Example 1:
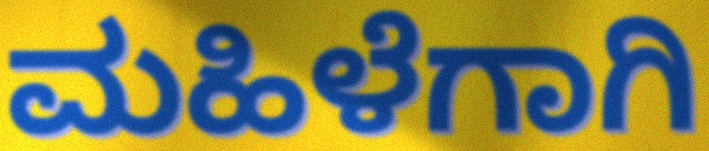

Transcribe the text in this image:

ಮಹಿಳೆಗಾಗಿ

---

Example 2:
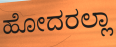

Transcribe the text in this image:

ಹೋದರಲ್ಲಾ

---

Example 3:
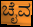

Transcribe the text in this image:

ಚೈವ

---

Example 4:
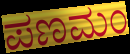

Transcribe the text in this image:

ಪಣಮಂ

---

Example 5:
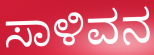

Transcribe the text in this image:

ಸಾಳಿವನ